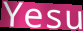
Yesu